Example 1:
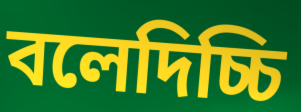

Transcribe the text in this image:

বলেদিচ্চি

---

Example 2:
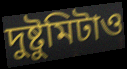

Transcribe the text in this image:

দুষ্টুমিটাও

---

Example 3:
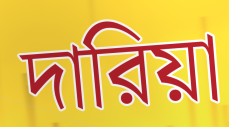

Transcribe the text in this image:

দারিয়া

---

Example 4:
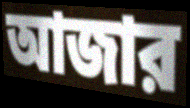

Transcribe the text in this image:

আজার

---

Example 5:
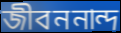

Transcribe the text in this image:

জীবননান্দ